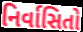
નિર્વાસિતો